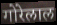
गोरेलाल